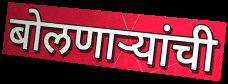
बोलणाऱ्यांची